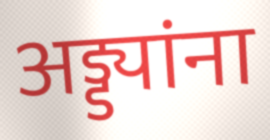
अड्ड्यांना